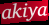
akiya